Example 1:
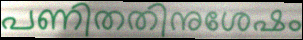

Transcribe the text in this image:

പണിതതിനുശേഷം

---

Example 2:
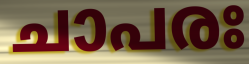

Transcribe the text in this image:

ചാപരഃ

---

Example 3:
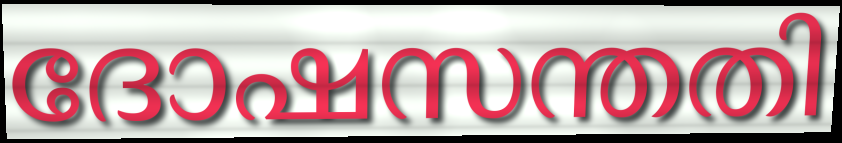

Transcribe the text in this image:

ദോഷസന്തതി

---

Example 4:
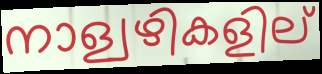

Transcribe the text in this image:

നാള്വഴികളില്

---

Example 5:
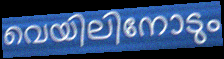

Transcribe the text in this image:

വെയിലിനോടും